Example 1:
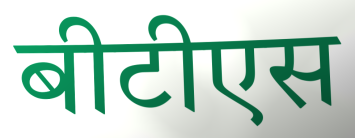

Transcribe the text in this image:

बीटीएस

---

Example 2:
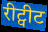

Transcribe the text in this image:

रीट्वीट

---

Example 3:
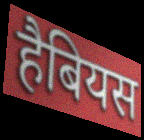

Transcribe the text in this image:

हैबियस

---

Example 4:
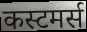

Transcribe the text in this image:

कस्टमर्स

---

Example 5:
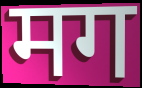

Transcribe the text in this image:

मग